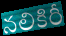
నలికిరీ